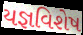
યજ્ઞવિશેષ